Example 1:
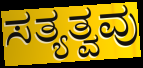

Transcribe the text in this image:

ಸತ್ಯತ್ವವು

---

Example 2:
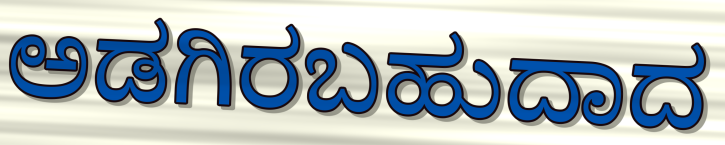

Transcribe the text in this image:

ಅಡಗಿರಬಹುದಾದ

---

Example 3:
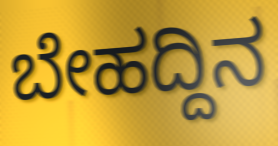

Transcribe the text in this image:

ಬೇಹದ್ದಿನ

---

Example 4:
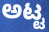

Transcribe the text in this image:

ಅಟ್ಟ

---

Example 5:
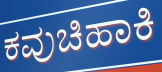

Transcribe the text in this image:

ಕವುಚಿಹಾಕಿ